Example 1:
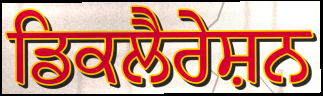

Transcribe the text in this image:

ਡਿਕਲੈਰੇਸ਼ਨ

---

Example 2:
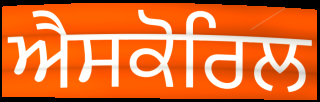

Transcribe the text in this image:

ਐਸਕੋਰਿਲ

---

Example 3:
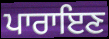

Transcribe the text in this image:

ਪਾਰਾਇਣ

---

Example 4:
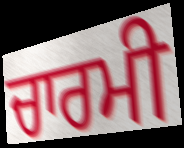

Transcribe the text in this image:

ਚਾਰਮੀ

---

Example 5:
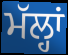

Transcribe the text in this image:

ਮੱਲ੍ਹਾਂ